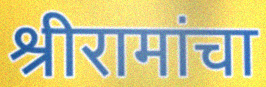
श्रीरामांचा